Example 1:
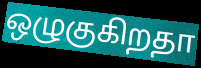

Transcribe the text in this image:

ஒழுகுகிறதா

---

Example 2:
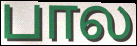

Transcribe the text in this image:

பால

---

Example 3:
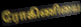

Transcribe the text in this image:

ரோகிணியை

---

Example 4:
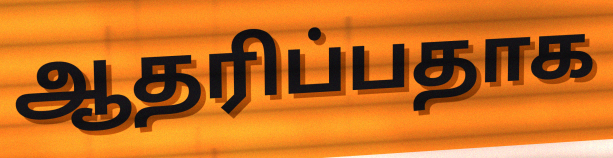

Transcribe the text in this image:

ஆதரிப்பதாக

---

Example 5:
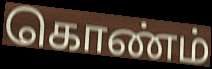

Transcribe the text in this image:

கொண்ம்